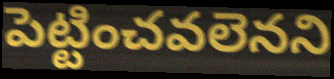
పెట్టించవలెనని